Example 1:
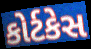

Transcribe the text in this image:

કોર્ટકેસ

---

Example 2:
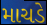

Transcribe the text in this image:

માચડે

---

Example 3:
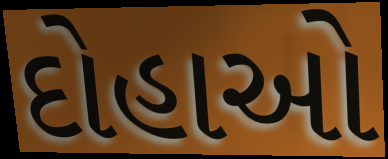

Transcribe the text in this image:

દોહાઓ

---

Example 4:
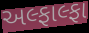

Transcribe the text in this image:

અલ્ફાલ્ફા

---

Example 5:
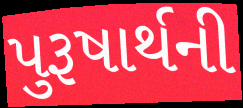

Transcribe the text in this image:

પુરૂષાર્થની